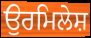
ਉਰਮਿਲੇਸ਼